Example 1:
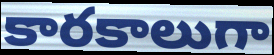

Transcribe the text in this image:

కారకాలుగా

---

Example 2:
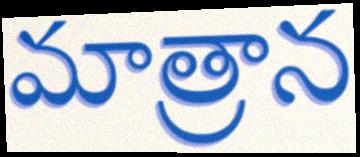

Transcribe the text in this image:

మాత్రాన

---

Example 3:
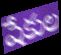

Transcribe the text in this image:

షేకుల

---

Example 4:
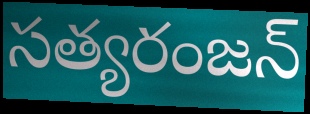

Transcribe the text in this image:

సత్యరంజన్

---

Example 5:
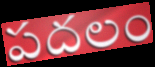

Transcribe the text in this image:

పదలం